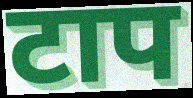
टाप